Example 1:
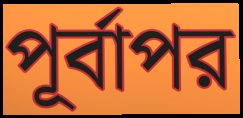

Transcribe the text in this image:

পূর্বাপর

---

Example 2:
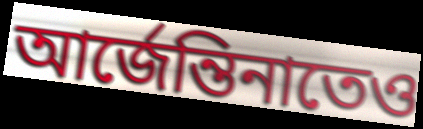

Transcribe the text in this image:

আর্জেন্তিনাতেও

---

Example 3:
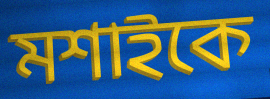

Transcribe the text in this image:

মশাইকে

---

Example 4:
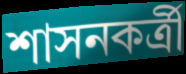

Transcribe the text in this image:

শাসনকর্ত্রী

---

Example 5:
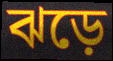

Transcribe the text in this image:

ঝড়ে